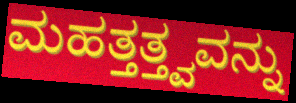
ಮಹತ್ತತ್ತ್ವವನ್ನು